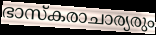
ഭാസ്കരാചാര്യരും